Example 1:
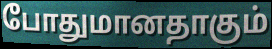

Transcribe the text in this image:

போதுமானதாகும்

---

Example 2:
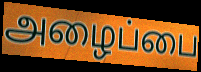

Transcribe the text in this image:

அழைப்பை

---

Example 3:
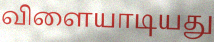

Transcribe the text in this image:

விளையாடியது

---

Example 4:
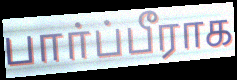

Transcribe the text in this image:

பார்ப்பீராக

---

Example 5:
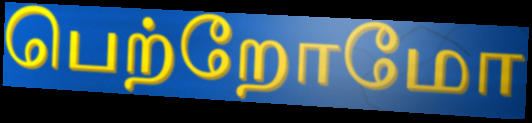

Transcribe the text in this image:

பெற்றோமோ